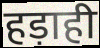
हड़ाही